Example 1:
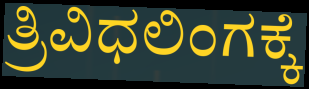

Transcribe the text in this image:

ತ್ರಿವಿಧಲಿಂಗಕ್ಕೆ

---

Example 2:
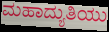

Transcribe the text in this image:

ಮಹಾದ್ಯುತಿಯು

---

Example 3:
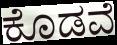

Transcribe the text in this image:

ಕೊಡವೆ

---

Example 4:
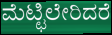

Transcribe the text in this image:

ಮೆಟ್ಟಿಲೇರಿದರೆ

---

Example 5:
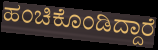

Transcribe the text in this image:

ಹಂಚಿಕೊಂಡಿದ್ದಾರೆ